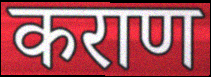
कराण